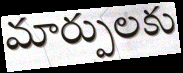
మార్పులకు